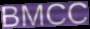
BMCC